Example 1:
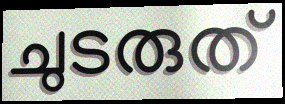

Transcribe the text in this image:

ചുടരുത്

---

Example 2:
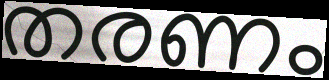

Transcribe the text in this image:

തരണം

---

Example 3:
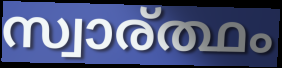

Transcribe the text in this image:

സ്വാര്ത്ഥം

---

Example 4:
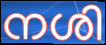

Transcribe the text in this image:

നശി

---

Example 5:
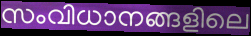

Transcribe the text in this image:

സംവിധാനങ്ങളിലെ